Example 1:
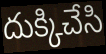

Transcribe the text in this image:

దుక్కిచేసి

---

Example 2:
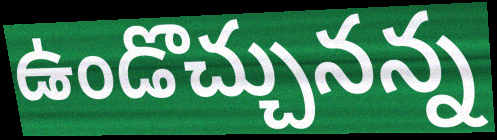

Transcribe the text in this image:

ఉండొచ్చునన్న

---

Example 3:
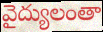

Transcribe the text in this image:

వైద్యులంతా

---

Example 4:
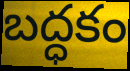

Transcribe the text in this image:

బద్ధకం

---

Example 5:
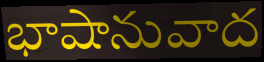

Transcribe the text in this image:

భాషానువాద